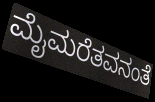
ಮೈಮರೆತವನಂತೆ